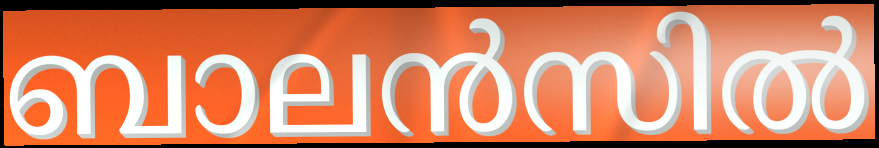
ബാലൻസിൽ